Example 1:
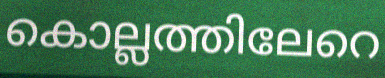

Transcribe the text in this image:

കൊല്ലത്തിലേറെ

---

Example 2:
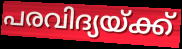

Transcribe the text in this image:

പരവിദ്യയ്ക്ക്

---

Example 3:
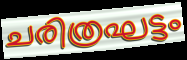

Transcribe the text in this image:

ചരിത്രഘട്ടം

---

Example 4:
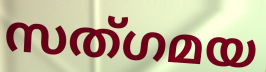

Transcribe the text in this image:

സത്ഗമയ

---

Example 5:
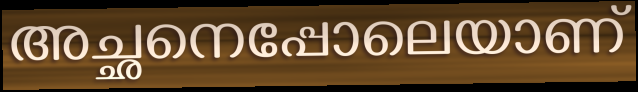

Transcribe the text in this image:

അച്ഛനെപ്പോലെയാണ്